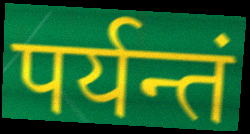
पर्यन्तं